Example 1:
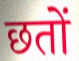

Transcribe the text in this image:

छतों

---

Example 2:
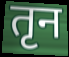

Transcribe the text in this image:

तृन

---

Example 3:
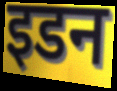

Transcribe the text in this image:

इडन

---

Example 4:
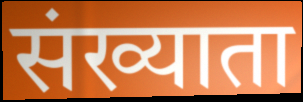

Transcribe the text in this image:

संख्याता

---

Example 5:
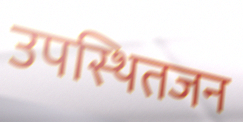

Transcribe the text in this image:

उपस्थितजन